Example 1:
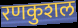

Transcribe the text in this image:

रणकुशल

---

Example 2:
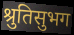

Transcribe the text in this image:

श्रुतिसुभग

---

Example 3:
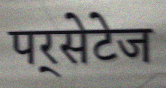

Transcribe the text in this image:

पर्सेटेज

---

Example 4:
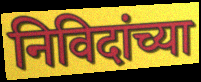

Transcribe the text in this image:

निविदांच्या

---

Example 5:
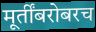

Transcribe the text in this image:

मूर्तींबरोबरच